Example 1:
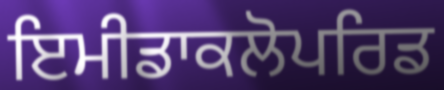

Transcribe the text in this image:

ਇਮੀਡਾਕਲੋਪਰਿਡ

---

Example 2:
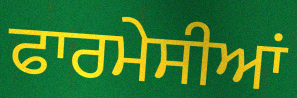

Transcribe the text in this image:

ਫਾਰਮੇਸੀਆਂ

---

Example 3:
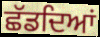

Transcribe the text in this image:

ਛੱਡਦਿਆਂ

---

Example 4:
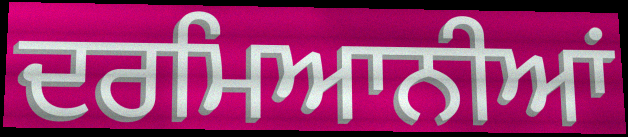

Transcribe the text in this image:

ਦਰਮਿਆਨੀਆਂ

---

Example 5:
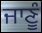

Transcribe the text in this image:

ਜਾਣੂੰ